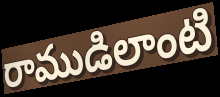
రాముడిలాంటి